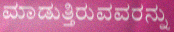
ಮಾಡುತ್ತಿರುವವರನ್ನು